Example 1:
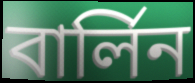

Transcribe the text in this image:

বার্লিন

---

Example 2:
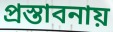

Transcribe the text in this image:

প্রস্তাবনায়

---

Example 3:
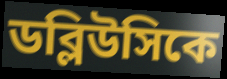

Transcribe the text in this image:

ডব্লিউসিকে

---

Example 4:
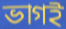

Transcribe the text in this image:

ভাগই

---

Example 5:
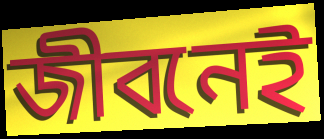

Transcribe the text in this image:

জীবনেই